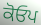
ਕੋਓਪ